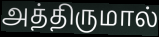
அத்திருமால்